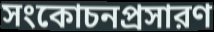
সংকোচনপ্রসারণ